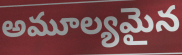
అమూల్యమైన